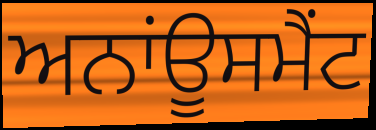
ਅਨਾਂਊਸਮੈਂਟ